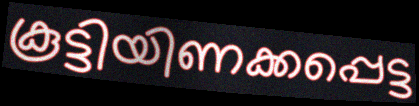
കൂട്ടിയിണക്കപ്പെട്ട